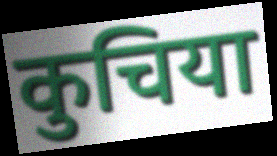
कुचिया